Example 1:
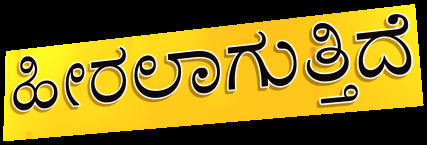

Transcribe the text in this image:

ಹೀರಲಾಗುತ್ತಿದೆ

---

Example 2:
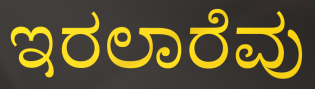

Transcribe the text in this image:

ಇರಲಾರೆವು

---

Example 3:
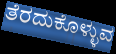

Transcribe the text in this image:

ತೆರದುಕೊಳ್ಳುವ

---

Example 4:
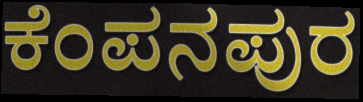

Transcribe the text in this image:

ಕೆಂಪನಪುರ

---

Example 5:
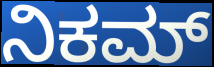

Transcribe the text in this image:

ನಿಕಮ್